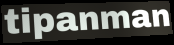
tipanman